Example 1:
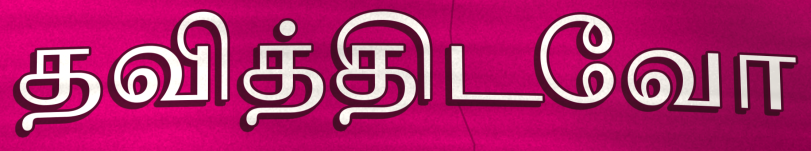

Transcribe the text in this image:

தவித்திடவோ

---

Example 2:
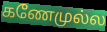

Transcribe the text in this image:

கணேமுல்ல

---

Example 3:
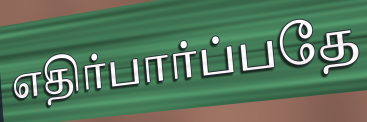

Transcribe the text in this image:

எதிர்பார்ப்பதே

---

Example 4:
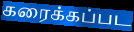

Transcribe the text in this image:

கரைக்கப்பட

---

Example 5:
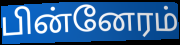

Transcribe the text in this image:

பின்னேரம்